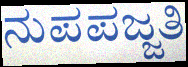
ನುಪಪಜ್ಜತಿ